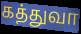
கத்துவா